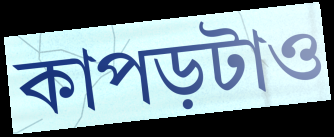
কাপড়টাও